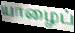
யாழைப்